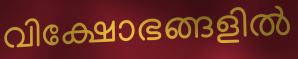
വിക്ഷോഭങ്ങളിൽ